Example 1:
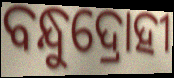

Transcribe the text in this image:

ବନ୍ଧୁଦ୍ରୋହୀ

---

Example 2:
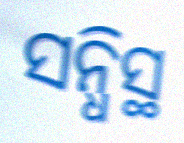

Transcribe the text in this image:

ସନ୍ଧିସ୍ଥ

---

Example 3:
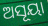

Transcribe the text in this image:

ଅସୂୟା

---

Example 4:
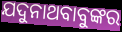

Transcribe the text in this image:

ଯଦୁନାଥବାବୁଙ୍କର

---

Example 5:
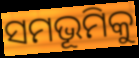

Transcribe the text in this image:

ସମଭୂମିକୁ